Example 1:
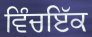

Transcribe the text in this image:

ਵਿੰਚਇੱਕ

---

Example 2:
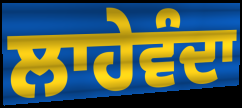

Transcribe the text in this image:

ਲਾਹੇਵੰਦਾ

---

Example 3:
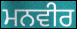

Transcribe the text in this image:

ਮਨਵੀਰ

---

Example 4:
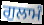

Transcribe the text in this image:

ਗੁਲਾਮੰ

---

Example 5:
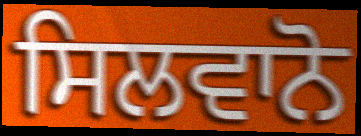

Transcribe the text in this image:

ਸਿਲਵਾਨੋ